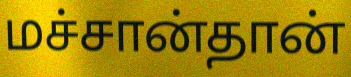
மச்சான்தான்